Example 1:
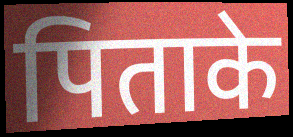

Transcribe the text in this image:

पिताके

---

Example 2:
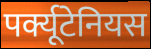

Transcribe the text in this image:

पर्क्यूटेनियस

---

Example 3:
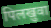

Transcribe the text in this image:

पिलखुवा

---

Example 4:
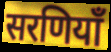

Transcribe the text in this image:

सरणियाँ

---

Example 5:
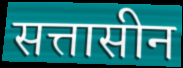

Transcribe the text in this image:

सत्तासीन